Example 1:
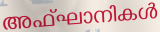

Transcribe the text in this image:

അഫ്ഘാനികൾ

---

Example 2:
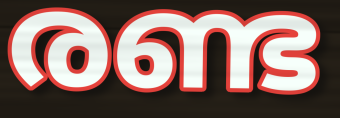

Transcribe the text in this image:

രണ്ട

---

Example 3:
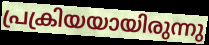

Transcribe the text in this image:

പ്രക്രിയയായിരുന്നു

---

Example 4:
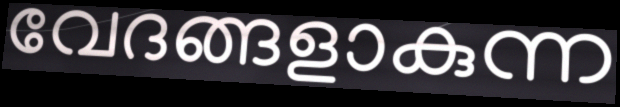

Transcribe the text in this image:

വേദങ്ങളാകുന്ന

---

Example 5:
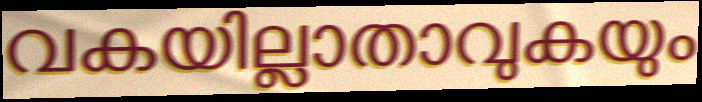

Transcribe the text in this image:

വകയില്ലാതാവുകയും